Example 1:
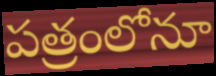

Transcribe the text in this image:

పత్రంలోనూ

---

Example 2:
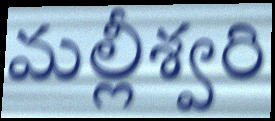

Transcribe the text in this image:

మల్లీశ్వరి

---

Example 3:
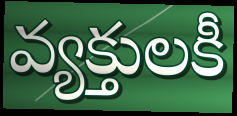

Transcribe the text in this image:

వ్యక్తులకీ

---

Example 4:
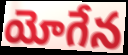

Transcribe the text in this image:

యోగేన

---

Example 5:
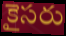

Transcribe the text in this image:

కైసరు